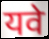
यवे